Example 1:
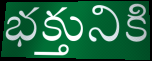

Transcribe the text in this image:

భక్తునికి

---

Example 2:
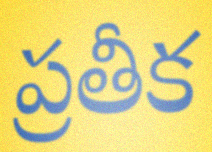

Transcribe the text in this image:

ప్రతీక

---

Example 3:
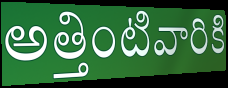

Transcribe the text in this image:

అత్తింటివారికి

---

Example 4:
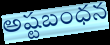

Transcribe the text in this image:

అష్టబంధన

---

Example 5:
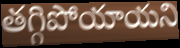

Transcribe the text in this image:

తగ్గిపోయాయని